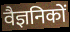
वैज्ञनिकों